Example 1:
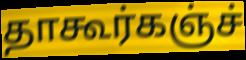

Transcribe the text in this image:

தாகூர்கஞ்ச்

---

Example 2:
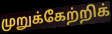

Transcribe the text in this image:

முறுக்கேற்றிக்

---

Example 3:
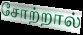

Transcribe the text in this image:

சோற்றால்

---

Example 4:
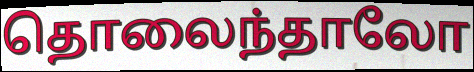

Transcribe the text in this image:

தொலைந்தாலோ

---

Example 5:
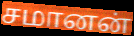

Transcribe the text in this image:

சமானன்